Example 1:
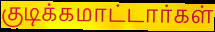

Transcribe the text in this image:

குடிக்கமாட்டார்கள்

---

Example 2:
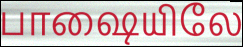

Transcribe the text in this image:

பாஷையிலே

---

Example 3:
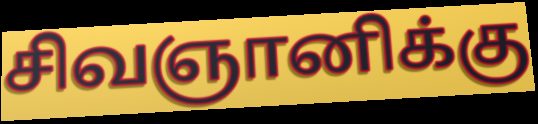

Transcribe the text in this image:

சிவஞானிக்கு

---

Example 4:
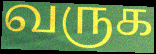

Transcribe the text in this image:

வருக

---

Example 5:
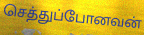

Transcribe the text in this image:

செத்துப்போனவன்